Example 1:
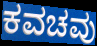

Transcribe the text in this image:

ಕವಚವು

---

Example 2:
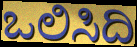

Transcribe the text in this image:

ಒಲಿಸಿದಿ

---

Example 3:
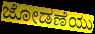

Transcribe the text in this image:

ಜೋಡಣೆಯು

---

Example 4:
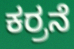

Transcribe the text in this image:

ಕರ್ರನೆ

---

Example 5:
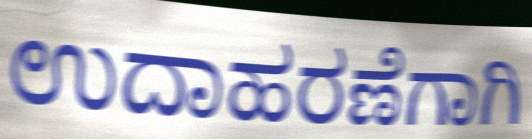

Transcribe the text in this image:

ಉದಾಹರಣೆಗಾಗಿ